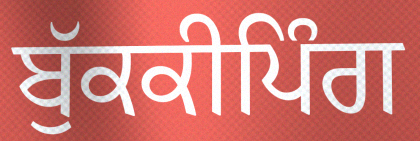
ਬੁੱਕਕੀਪਿੰਗ